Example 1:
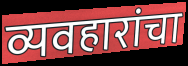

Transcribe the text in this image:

व्यवहारांचा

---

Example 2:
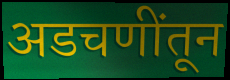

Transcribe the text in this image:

अडचणींतून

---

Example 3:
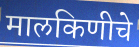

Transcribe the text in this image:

मालकिणीचे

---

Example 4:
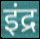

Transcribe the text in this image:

इंद्र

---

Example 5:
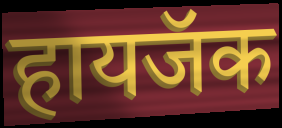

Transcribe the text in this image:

हायजॅक